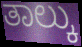
ತಾಲ್ಕು